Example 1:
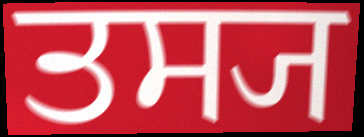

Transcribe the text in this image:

ਤਸ੍ਯ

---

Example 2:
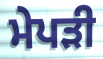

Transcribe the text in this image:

ਮੇਪੜੀ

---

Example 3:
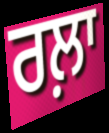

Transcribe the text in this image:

ਰਲ਼ਾ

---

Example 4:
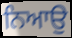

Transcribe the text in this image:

ਨਿਆਉ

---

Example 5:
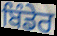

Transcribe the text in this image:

ਬਿੰਡੇਰ